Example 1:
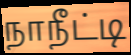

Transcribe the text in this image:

நாநீட்டி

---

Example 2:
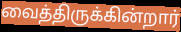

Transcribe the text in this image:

வைத்திருக்கின்றார்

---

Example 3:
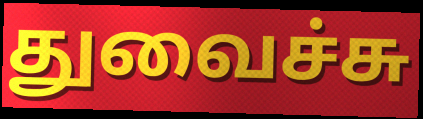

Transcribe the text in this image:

துவைச்சு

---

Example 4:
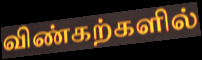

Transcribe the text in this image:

விண்கற்களில்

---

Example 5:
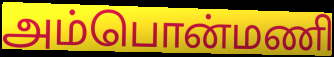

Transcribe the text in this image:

அம்பொன்மணி